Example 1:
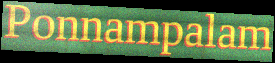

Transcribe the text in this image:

Ponnampalam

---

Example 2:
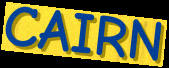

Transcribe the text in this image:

CAIRN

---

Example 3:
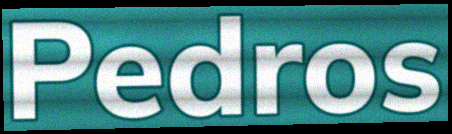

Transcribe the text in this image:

Pedros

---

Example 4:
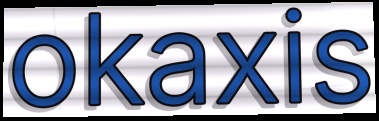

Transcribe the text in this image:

okaxis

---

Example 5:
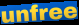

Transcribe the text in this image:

unfree